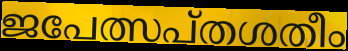
ജപേത്സപ്തശതീം